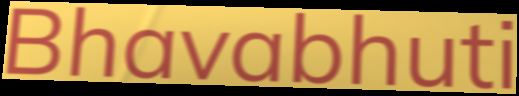
Bhavabhuti